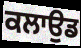
ਕਲਾਉਡ